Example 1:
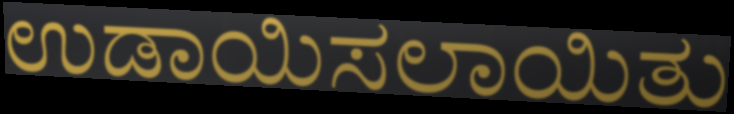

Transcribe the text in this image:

ಉಡಾಯಿಸಲಾಯಿತು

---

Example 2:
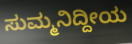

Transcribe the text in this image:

ಸುಮ್ಮನಿದ್ದೀಯ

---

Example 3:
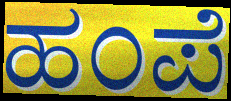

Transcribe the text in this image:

ಹಂಪೆ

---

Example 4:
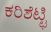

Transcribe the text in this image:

ಕರಿಶೆಟ್ಟಿ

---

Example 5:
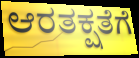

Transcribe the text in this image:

ಆರತಕ್ಷತೆಗೆ